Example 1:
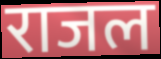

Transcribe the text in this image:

राजल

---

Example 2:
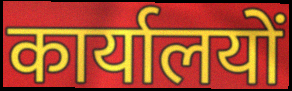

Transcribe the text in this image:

कार्यालयों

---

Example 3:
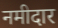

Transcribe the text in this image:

नमीदार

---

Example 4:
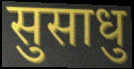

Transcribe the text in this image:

सुसाधु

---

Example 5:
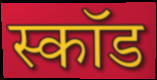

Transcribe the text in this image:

स्कॉड